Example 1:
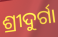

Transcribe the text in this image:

ଶ୍ରୀଦୁର୍ଗା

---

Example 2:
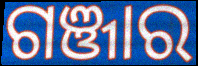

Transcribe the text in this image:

ଗଞ୍ଜାର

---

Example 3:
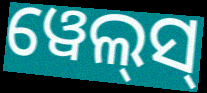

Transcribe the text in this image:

ୱେଲ୍‌ସ୍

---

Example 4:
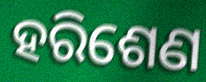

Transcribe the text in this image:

ହରିଶେଣ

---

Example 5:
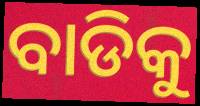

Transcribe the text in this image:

ବାଡିକୁ